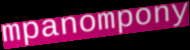
mpanompony